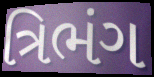
ત્રિભંગ